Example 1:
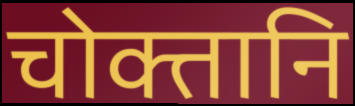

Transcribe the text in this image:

चोक्तानि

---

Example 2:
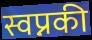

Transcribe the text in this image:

स्वप्नकी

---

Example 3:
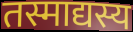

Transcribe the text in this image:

तस्माद्यस्य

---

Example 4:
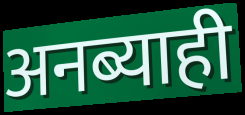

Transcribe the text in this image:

अनब्याही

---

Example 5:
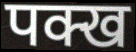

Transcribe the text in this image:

पक्ख